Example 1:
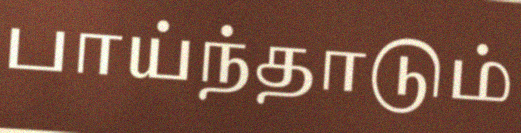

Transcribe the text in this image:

பாய்ந்தாடும்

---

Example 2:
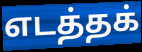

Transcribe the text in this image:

எடத்தக்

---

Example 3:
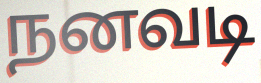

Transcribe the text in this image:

நனவடி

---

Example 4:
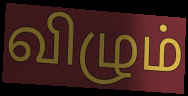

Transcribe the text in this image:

விழும்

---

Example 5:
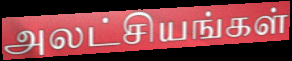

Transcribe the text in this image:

அலட்சியங்கள்